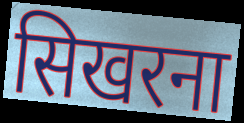
सिखरना